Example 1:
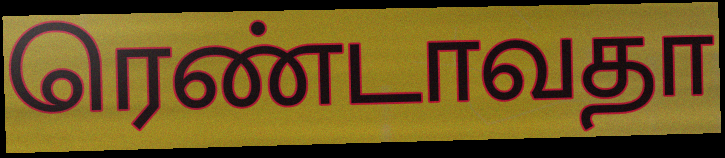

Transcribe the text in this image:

ரெண்டாவதா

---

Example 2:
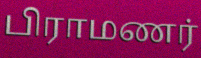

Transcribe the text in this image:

பிராமணர்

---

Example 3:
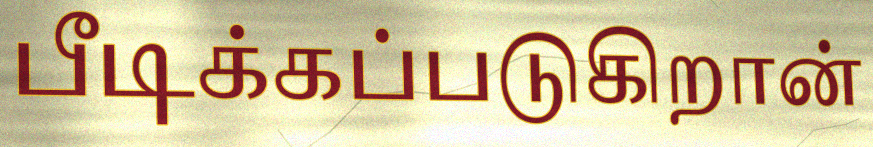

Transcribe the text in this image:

பீடிக்கப்படுகிறான்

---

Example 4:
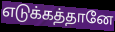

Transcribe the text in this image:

எடுக்கத்தானே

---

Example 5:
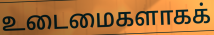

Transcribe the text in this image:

உடைமைகளாகக்